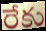
రేకు